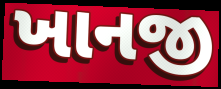
ખાનજી